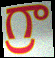
గ్రా